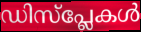
ഡിസ്പ്ലേകൾ